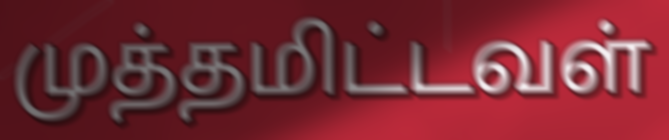
முத்தமிட்டவள்